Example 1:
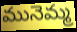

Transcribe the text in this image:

మునెమ్మ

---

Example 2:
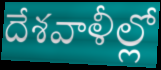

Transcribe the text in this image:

దేశవాళీల్లో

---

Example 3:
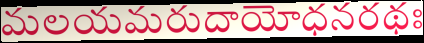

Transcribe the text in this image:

మలయమరుదాయోధనరథః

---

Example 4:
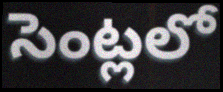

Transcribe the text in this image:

సెంట్లలో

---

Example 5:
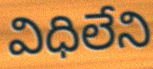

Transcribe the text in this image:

విధిలేని